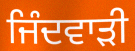
ਜਿੰਦਵਾੜੀ